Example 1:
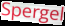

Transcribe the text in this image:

Spergel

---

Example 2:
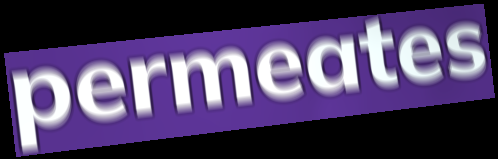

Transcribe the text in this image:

permeates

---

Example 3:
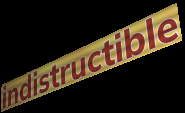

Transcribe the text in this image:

indistructible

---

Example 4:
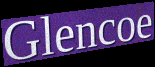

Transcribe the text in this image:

Glencoe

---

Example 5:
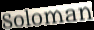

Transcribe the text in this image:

Soloman